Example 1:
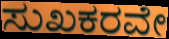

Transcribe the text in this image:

ಸುಖಕರವೇ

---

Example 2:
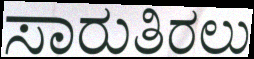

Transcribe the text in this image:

ಸಾರುತಿರಲು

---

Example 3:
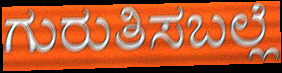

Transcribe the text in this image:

ಗುರುತಿಸಬಲ್ಲೆ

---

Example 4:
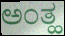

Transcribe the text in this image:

ಅಂತ್ಹ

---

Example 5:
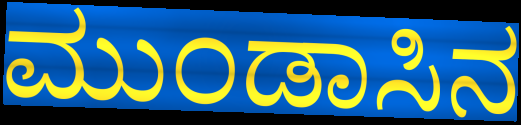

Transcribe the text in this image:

ಮುಂಡಾಸಿನ